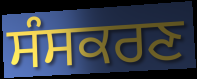
ਸੰਸਕਰਣ